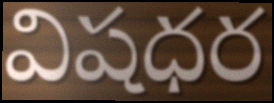
విషధర